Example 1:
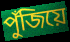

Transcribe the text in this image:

পুঁজিয়ে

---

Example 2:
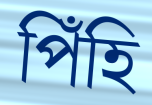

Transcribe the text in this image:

পিঁহি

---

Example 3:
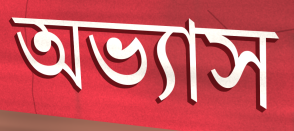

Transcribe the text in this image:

অভ্যাস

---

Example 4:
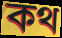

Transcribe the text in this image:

কথ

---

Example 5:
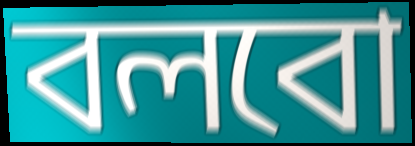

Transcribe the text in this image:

বলবো